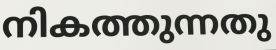
നികത്തുന്നതു